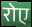
रोए